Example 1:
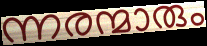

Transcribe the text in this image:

ന്നരന്മാരും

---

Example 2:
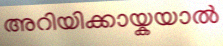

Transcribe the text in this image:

അറിയിക്കായ്കയാൽ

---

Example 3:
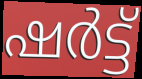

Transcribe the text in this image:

ഷർട്ട്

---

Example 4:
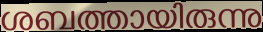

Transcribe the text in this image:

ശബത്തായിരുന്നു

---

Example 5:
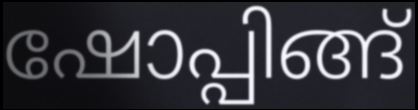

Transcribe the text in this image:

ഷോപ്പിങ്ങ്